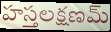
హస్తలక్షణమ్